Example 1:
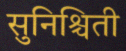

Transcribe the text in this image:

सुनिश्चिती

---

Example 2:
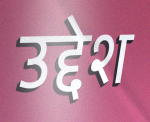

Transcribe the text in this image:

उद्देश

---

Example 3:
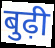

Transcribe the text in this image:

बुढ़ी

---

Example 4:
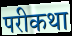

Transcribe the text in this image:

परीकथा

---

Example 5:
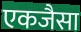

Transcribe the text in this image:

एकजैसा